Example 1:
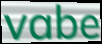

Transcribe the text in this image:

vabe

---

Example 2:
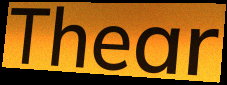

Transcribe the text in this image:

Thear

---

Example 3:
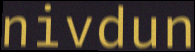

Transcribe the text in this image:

nivdun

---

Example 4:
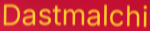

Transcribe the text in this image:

Dastmalchi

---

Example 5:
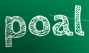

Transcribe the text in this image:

poal